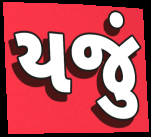
યજું